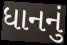
ધાનનું